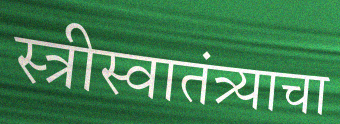
स्त्रीस्वातंत्र्याचा